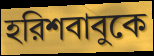
হরিশবাবুকে